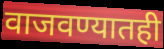
वाजवण्यातही